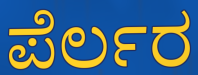
ಪೆರ್ಲರ